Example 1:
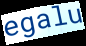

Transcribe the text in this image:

egalu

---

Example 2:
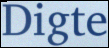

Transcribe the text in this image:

Digte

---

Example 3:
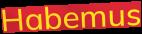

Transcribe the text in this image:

Habemus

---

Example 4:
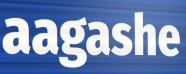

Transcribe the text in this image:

aagashe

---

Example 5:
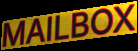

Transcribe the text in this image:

MAILBOX